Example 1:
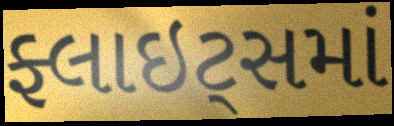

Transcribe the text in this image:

ફ્લાઇટ્સમાં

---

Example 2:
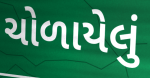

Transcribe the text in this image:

ચોળાયેલું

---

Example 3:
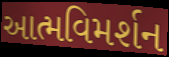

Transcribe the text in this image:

આત્મવિમર્શન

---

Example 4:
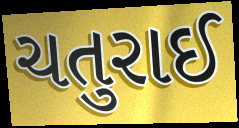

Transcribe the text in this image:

ચતુરાઈ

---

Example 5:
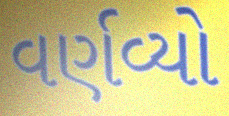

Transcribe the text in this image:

વર્ણવ્યો